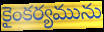
కైంకర్యమును